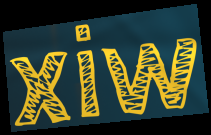
xiw